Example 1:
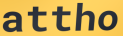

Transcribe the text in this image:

attho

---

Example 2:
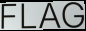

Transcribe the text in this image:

FLAG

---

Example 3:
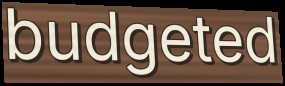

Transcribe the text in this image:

budgeted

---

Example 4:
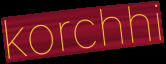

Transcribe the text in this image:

korchhi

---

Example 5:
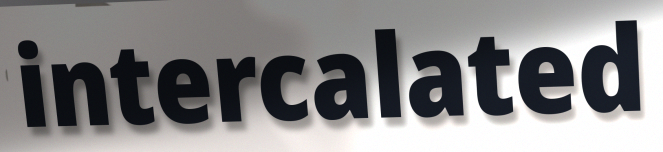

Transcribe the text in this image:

intercalated